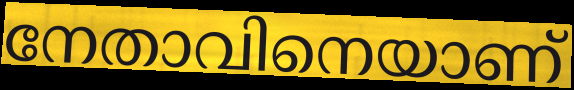
നേതാവിനെയാണ്